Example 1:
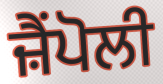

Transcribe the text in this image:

ਜ਼ੈਂਪੋਲੀ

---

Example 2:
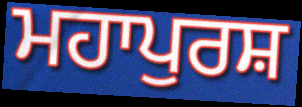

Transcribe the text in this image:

ਮਹਾਪੁਰਸ਼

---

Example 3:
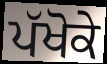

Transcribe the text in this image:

ਪੱਖੋਕੇ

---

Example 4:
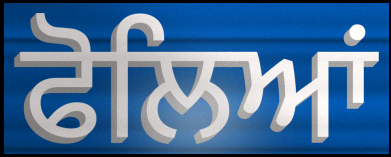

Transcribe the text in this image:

ਫੋਲਿਆਂ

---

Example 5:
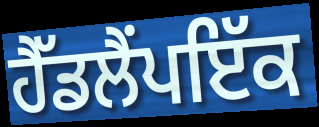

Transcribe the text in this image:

ਹੈੱਡਲੈਂਪਇੱਕ